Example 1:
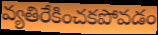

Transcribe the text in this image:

వ్యతిరేకించకపోవడం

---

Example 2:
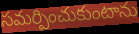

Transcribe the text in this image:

సమర్పించుకుంటాను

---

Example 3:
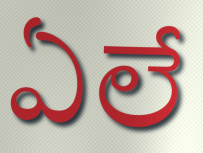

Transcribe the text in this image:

ఏలే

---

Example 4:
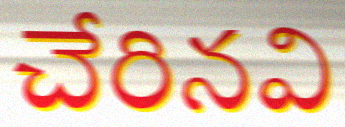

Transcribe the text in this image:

చేరినవి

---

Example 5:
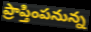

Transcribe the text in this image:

ప్రాప్తింపనున్న